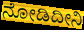
ನೋಡಿದೀನಿ